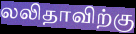
லலிதாவிற்கு